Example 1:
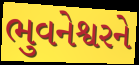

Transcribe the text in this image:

ભુવનેશ્વરને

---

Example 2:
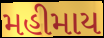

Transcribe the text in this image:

મહીમાય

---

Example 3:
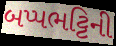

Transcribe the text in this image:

બપ્પભટ્ટિની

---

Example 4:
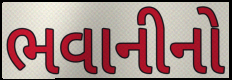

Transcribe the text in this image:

ભવાનીનો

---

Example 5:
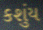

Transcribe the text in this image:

કશુંય